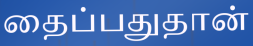
தைப்பதுதான்